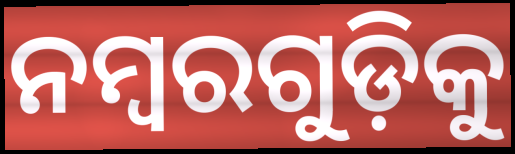
ନମ୍ବରଗୁଡ଼ିକୁ